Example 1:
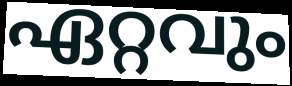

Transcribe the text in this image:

ഏറ്റവും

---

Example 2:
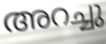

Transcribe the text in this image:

അറച്ചു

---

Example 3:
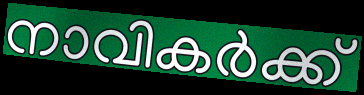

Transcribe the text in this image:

നാവികർക്ക്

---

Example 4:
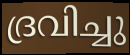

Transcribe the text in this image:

ദ്രവിച്ചു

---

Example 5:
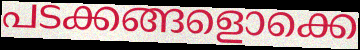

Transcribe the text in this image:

പടക്കങ്ങളൊക്കെ